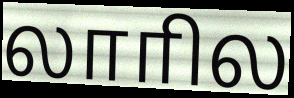
லாரில